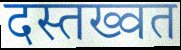
दस्तख्वत